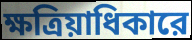
ক্ষত্রিয়াধিকারে